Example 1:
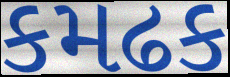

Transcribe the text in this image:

કમઢક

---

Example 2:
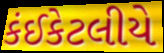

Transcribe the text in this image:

કંઈકેટલીયે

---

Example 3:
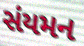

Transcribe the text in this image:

સંયમન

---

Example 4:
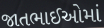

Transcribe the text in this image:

જાતભાઈઓમાં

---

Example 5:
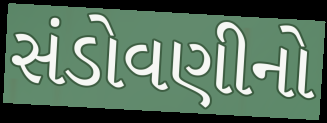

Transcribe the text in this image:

સંડોવણીનો